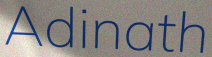
Adinath